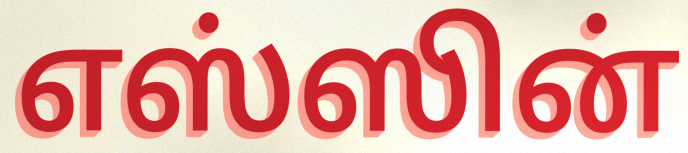
எஸ்ஸின்